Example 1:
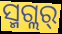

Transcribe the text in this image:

ସ୍ମଗ୍ଲର୍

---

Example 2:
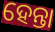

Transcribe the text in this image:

ହେନ୍ତା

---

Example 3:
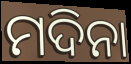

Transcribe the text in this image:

ମଦିନା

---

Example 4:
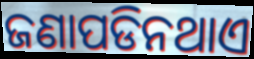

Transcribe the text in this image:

ଜଣାପଡିନଥାଏ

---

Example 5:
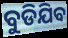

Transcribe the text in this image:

ବୁଡିଯିବ